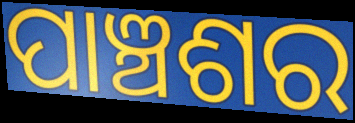
ପାଞ୍ଚଶର